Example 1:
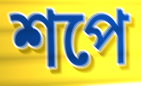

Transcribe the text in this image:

শপে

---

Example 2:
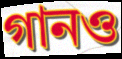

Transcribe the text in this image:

গানও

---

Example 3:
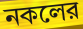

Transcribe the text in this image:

নকলের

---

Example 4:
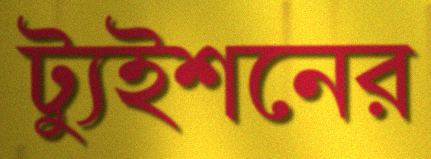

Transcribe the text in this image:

ট্যুইশনের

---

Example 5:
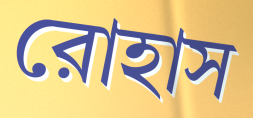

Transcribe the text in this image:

রোহাস